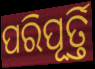
ପରିପୂର୍ତ୍ତି